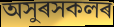
অসুৰসকলৰ